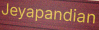
Jeyapandian